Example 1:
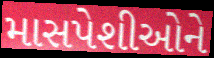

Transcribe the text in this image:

માસપેશીઓને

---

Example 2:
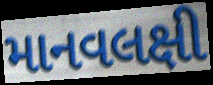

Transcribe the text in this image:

માનવલક્ષી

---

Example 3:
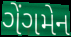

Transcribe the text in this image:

ગેંગમેન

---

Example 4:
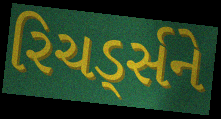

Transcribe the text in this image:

રિચર્ડ્સને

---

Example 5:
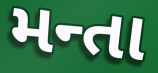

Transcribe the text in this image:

મન્તા